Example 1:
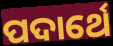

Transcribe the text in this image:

ପଦାର୍ଥେ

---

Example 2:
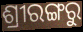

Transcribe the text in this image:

ଶ୍ରୀରଙ୍ଗରୁ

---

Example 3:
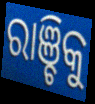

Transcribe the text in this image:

ରାଞ୍ଚିକୁ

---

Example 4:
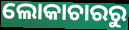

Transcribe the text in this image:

ଲୋକାଚାରରୁ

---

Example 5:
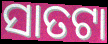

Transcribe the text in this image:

ସାତଟା